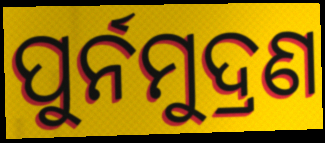
ପୁର୍ନମୁଦ୍ରଣ